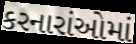
કરનારાંઓમાં